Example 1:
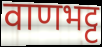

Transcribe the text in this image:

वाणभट्ट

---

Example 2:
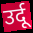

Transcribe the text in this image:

उर्दू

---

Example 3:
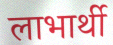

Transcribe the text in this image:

लाभार्थी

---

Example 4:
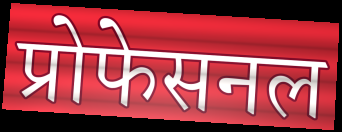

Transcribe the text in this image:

प्रोफेसनल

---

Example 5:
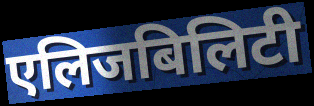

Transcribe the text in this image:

एलिजबिलिटी